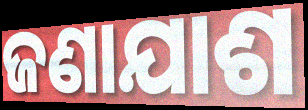
ଜଣାଯାଶ